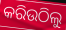
କରିଉଠିଲୁ